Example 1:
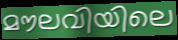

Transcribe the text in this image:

മൗലവിയിലെ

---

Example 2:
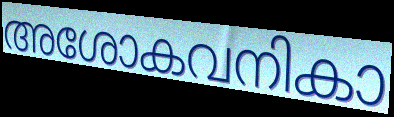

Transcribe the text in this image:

അശോകവനികാ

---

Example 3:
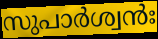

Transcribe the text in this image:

സുപാർശ്വൻഃ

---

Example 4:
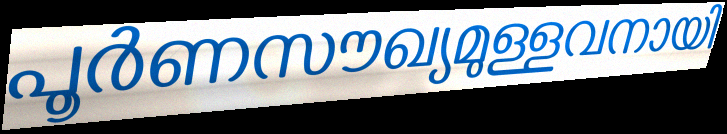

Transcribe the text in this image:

പൂർണസൗഖ്യമുള്ളവനായി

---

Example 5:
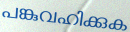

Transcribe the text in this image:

പങ്കുവഹിക്കുക